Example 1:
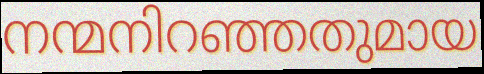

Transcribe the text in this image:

നന്മനിറഞ്ഞതുമായ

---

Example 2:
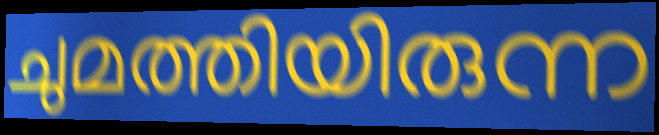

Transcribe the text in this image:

ചുമത്തിയിരുന്ന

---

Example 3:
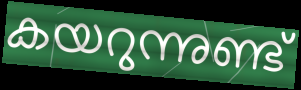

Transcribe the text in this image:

കയറുന്നുണ്ട്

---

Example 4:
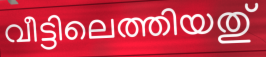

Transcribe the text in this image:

വീട്ടിലെത്തിയതു്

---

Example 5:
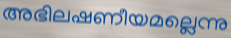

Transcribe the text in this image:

അഭിലഷണീയമല്ലെന്നു